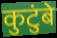
कुटुंबे